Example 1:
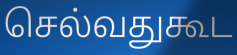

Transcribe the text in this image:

செல்வதுகூட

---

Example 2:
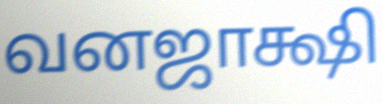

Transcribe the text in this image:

வனஜாக்ஷி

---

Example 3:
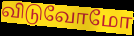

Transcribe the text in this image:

விடுவோமோ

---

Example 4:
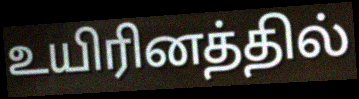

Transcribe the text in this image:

உயிரினத்தில்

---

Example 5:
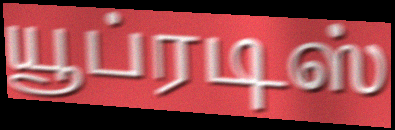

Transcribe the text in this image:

யூப்ரடிஸ்